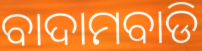
ବାଦାମବାଡି